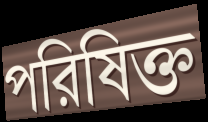
পরিষিক্ত